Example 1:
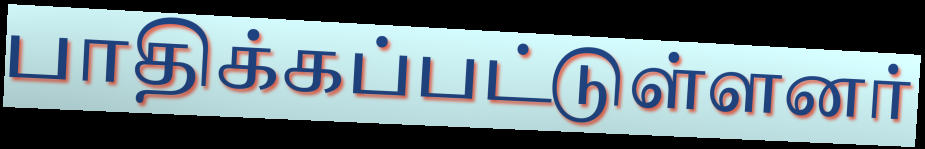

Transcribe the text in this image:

பாதிக்கப்பட்டுள்ளனர்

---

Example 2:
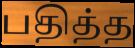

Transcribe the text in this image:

பதித்த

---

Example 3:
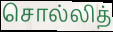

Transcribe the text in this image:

சொல்லித்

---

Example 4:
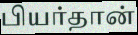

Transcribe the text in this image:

பியர்தான்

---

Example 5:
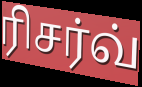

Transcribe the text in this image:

ரிசர்வ்